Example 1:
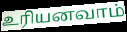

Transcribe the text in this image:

உரியனவாம்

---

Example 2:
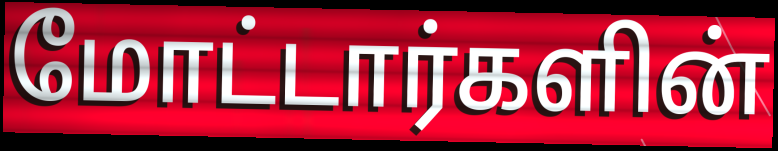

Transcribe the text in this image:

மோட்டார்களின்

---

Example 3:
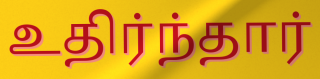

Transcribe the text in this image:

உதிர்ந்தார்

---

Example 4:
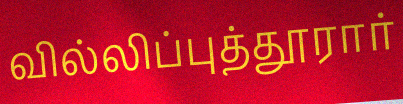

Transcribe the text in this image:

வில்லிப்புத்தூரார்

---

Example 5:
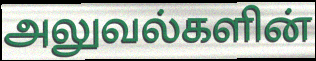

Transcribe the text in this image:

அலுவல்களின்